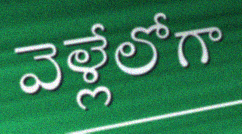
వెళ్లేలోగా